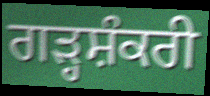
ਗੜ੍ਹਸ਼ੰਕਰੀ